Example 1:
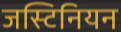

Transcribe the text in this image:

जस्टिनियन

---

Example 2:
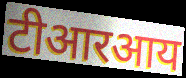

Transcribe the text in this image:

टीआरआय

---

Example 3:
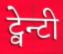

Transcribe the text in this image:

ट्वेन्टी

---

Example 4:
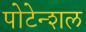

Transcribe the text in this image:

पोटेन्शल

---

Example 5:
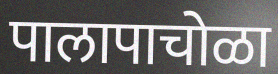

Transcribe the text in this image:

पालापाचोळा